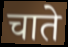
चाते